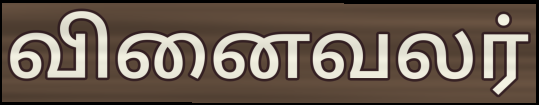
வினைவலர்